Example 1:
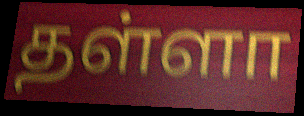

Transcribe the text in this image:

தள்ளா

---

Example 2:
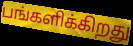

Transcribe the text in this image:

பங்களிக்கிறது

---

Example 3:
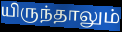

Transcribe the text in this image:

யிருந்தாலும்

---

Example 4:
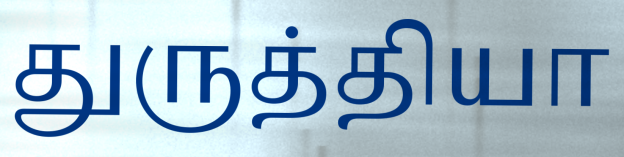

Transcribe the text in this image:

துருத்தியா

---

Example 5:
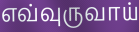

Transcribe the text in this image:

எவ்வுருவாய்